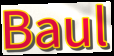
Baul